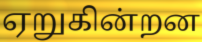
ஏறுகின்றன